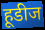
हूडीज